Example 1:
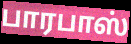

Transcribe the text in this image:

பாரபாஸ்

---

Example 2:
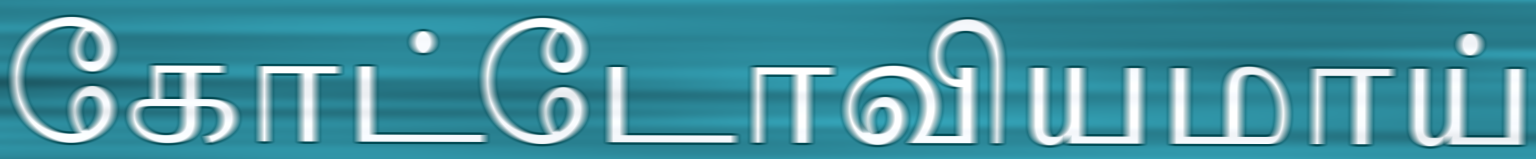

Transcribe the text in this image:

கோட்டோவியமாய்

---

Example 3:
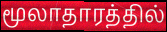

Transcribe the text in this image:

மூலாதாரத்தில்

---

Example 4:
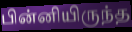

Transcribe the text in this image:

பின்னியிருந்த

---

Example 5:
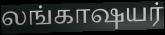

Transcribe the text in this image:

லங்காஷயர்